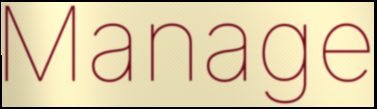
Manage